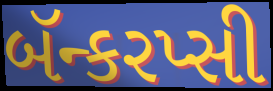
બૅન્કરપ્સી